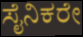
ಸೈನಿಕರೇ